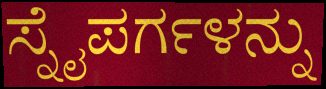
ಸ್ನೈಪರ್ಗಳನ್ನು